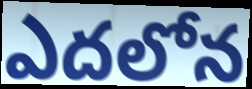
ఎదలోన